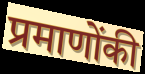
प्रमाणोंकी